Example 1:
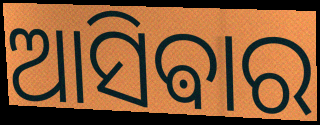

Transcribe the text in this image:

ଆସିଵାର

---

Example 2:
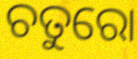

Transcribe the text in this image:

ଚତୁରୋ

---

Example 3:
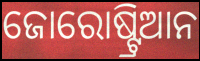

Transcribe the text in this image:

ଜୋରୋଷ୍ଟ୍ରିଆନ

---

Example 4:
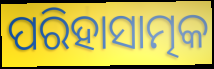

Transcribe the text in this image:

ପରିହାସାତ୍ମକ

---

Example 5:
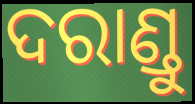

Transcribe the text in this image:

ଦରାଣ୍ଡୁ